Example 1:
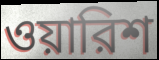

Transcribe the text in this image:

ওয়ারিশ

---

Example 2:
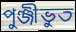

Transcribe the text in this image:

পুঞ্জীভুত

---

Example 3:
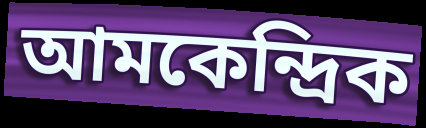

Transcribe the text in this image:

আমকেন্দ্রিক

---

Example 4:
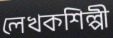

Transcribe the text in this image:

লেখকশিল্পী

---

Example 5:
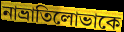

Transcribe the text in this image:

নাভ্রাতিলোভাকে